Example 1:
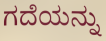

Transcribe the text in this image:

ಗದೆಯನ್ನು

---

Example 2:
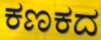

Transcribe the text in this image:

ಕಣಕದ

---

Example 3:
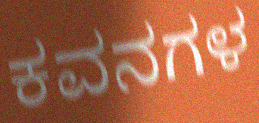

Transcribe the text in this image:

ಕವನಗಳ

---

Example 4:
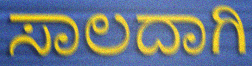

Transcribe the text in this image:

ಸಾಲದಾಗಿ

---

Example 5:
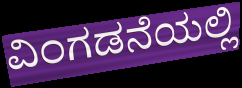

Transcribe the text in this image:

ವಿಂಗಡನೆಯಲ್ಲಿ